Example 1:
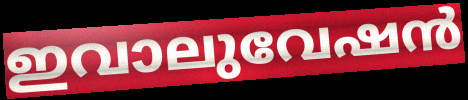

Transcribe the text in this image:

ഇവാലുവേഷൻ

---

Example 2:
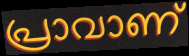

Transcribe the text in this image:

പ്രാവാണ്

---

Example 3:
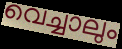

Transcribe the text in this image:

വെച്ചാലും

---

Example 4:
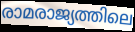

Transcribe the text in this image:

രാമരാജ്യത്തിലെ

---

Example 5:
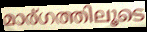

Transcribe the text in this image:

മാര്ഗത്തിലൂടെ